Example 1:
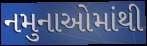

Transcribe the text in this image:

નમુનાઓમાંથી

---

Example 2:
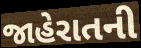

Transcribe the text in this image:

જાહેરાતની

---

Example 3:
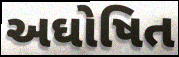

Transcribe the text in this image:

અઘોષિત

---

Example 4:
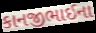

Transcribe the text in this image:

કાનજીભાઈના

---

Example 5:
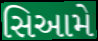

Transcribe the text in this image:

સિઆમે